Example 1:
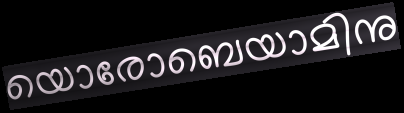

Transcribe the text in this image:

യൊരോബെയാമിനു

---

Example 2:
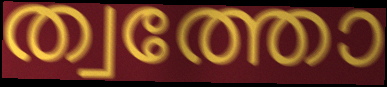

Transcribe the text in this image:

ത്വത്തോ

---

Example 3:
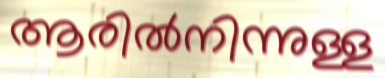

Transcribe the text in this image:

ആരിൽനിന്നുള്ള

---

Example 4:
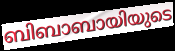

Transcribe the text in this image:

ബിബാബായിയുടെ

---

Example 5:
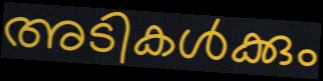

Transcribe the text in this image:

അടികൾക്കും